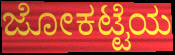
ಜೋಕಟ್ಟೆಯ